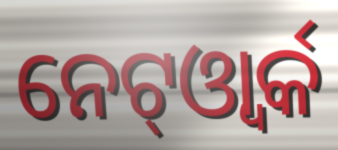
ନେଟ୍ଓ୍ବାର୍କ